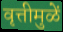
वृत्तीमुळें